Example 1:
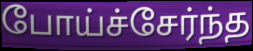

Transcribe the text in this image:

போய்ச்சேர்ந்த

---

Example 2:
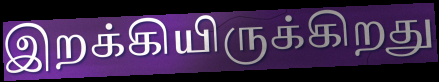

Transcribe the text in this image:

இறக்கியிருக்கிறது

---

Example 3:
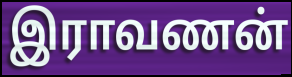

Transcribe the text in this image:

இராவணன்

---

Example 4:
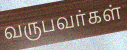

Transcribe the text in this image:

வருபவர்கள்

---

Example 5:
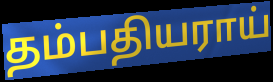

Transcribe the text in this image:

தம்பதியராய்